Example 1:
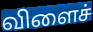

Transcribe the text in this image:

விளைச்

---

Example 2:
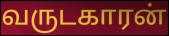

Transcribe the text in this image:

வருடகாரன்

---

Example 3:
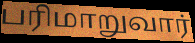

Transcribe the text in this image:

பரிமாறுவார்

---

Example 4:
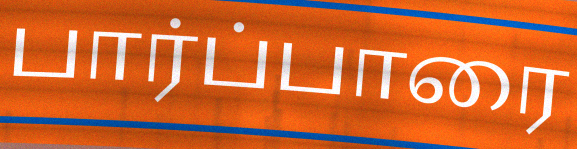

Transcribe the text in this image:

பார்ப்பாரை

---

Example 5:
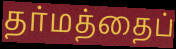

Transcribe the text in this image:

தர்மத்தைப்